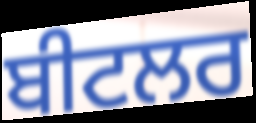
ਬੀਟਲਰ